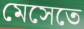
মেসেতে